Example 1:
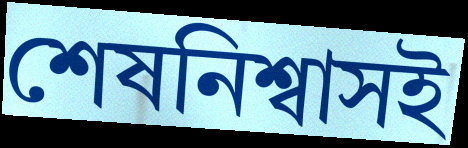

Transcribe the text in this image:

শেষনিশ্বাসই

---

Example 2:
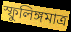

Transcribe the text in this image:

স্ফুলিঙ্গমাত্র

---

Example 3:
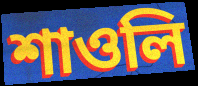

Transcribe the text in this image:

শাওলি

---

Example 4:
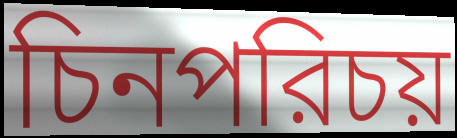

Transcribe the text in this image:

চিনপরিচয়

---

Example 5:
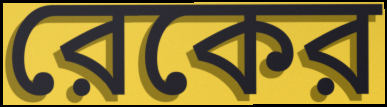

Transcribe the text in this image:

রেকের